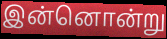
இன்னொன்று